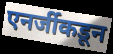
एनर्जीकडून